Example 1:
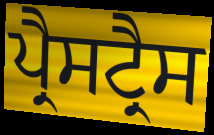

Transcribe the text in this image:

ਪ੍ਰੈਸਟ੍ਰੈਸ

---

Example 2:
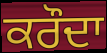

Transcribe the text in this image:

ਕਰੌਦਾ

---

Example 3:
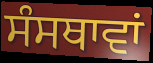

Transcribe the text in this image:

ਸੰਸਥਾਵਾਂ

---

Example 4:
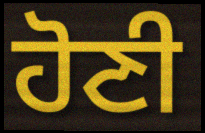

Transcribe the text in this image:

ਹੋਣੀ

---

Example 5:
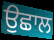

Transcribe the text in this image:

ਉਛਾਲ